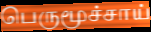
பெருமூச்சாய்